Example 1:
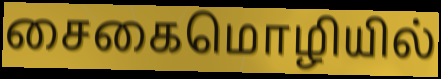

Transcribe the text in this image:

சைகைமொழியில்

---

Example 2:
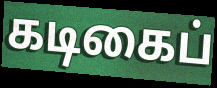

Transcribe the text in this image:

கடிகைப்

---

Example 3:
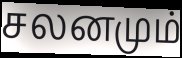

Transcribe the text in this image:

சலனமும்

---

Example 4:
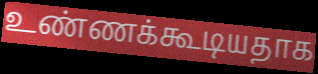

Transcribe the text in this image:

உண்ணக்கூடியதாக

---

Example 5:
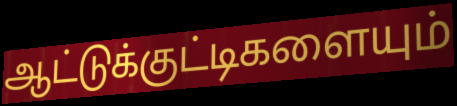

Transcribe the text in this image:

ஆட்டுக்குட்டிகளையும்